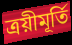
ত্ৰয়ীমূৰ্তি